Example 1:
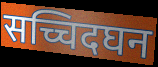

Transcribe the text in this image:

सच्चिदघन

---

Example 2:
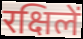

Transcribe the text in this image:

रक्षिलें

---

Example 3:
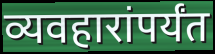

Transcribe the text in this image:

व्यवहारांपर्यंत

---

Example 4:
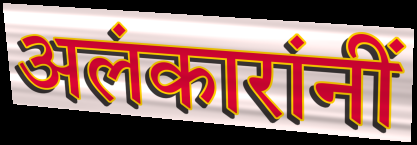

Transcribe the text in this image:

अलंकारांनीं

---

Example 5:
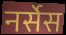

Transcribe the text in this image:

नर्सेस